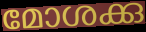
മോശക്കു